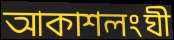
আকাশলংঘী